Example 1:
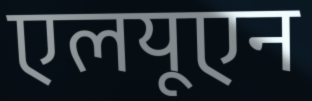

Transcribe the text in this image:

एलयूएन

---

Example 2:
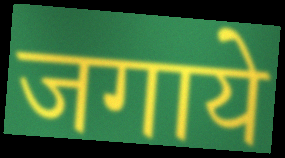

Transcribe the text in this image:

जगाये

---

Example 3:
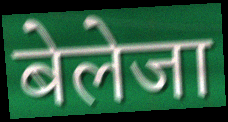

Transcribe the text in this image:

बेलेजा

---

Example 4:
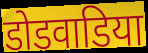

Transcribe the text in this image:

डोडवाडिया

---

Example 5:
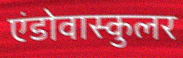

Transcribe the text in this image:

एंडोवास्कुलर